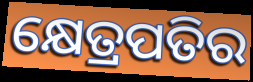
କ୍ଷେତ୍ରପତିର